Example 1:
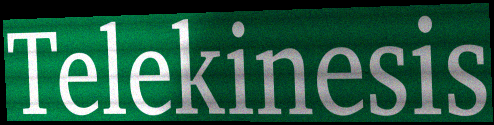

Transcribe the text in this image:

Telekinesis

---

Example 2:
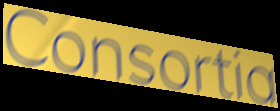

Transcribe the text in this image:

Consortia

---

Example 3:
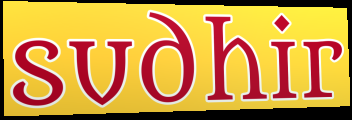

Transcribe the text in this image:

sudhir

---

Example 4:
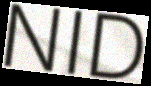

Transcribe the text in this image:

NID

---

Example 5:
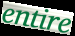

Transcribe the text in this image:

entire